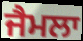
ਜੈਮਲਾ